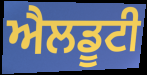
ਐਲਡੂਟੀ